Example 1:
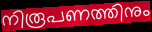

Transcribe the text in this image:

നിരൂപണത്തിനും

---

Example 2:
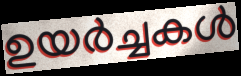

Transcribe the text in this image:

ഉയർച്ചകൾ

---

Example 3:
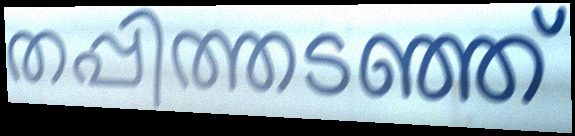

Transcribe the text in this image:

തപ്പിത്തടഞ്ഞ്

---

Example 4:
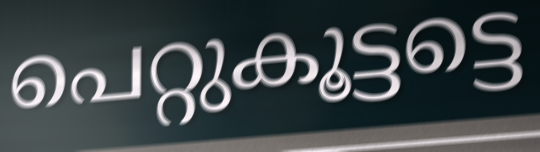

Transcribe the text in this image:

പെറ്റുകൂട്ടട്ടെ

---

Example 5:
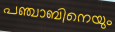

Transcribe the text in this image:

പഞ്ചാബിനെയും